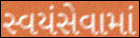
સ્વયંસેવામાં